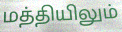
மத்தியிலும்